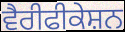
ਵੈਰੀਫੀਕੇਸ਼ਨ